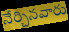
నేర్చినవారు